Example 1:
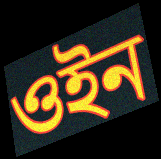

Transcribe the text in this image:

ওইন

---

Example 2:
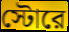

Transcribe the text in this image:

স্টোরে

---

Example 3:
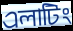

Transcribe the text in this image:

এলাটিং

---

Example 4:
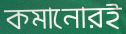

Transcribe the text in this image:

কমানোরই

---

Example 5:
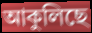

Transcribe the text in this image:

আকুলিছে